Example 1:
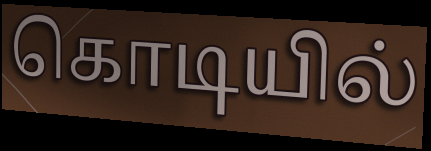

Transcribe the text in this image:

கொடியில்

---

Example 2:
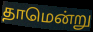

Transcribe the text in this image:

தாமென்று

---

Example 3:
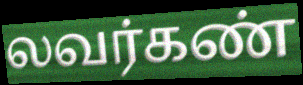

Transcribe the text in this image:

லவர்கண்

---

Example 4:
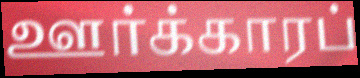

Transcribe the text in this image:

ஊர்க்காரப்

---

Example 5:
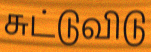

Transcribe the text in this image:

சுட்டுவிடு